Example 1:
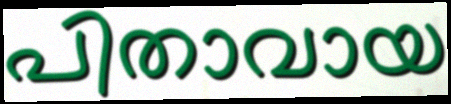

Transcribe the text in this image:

പിതാവായ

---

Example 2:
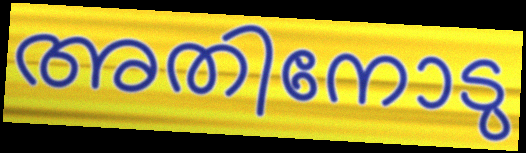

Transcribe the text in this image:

അതിനോടു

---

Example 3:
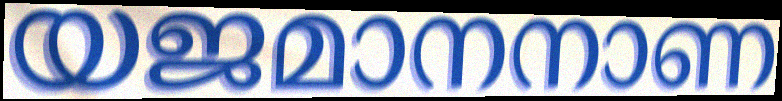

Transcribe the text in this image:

യജമാനനാണ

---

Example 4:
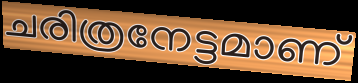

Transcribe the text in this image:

ചരിത്രനേട്ടമാണ്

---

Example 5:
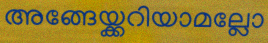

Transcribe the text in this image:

അങ്ങേയ്ക്കറിയാമല്ലോ